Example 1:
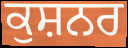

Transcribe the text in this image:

ਕੁਸ਼ਨਰ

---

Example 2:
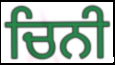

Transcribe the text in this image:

ਚਿਨੀ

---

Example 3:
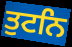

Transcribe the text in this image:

ਤੁਟਨਿ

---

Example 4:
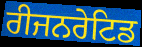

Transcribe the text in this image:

ਰੀਜਨਰੇਟਿਡ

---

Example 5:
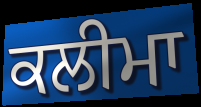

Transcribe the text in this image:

ਕਲੀਮਾ